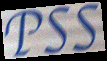
PSS